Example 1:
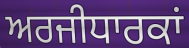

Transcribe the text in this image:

ਅਰਜੀਧਾਰਕਾਂ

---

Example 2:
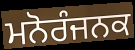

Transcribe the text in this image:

ਮਨੋਰੰਜਨਕ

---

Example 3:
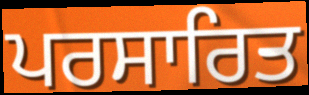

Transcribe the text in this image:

ਪਰਸਾਰਿਤ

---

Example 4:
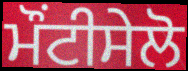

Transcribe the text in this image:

ਮੌਂਟੀਸੇਲੋ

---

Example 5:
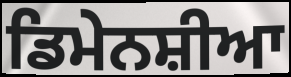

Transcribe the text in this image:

ਡਿਮੇਨਸ਼ੀਆ